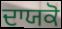
ਦਾਯਕੋ